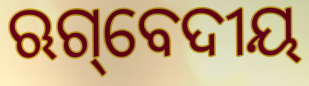
ଋଗ୍‌ବେଦୀୟ